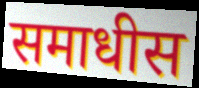
समाधीस